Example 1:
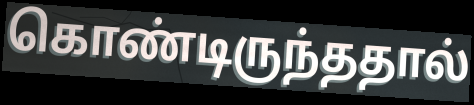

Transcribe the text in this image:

கொண்டிருந்ததால்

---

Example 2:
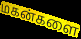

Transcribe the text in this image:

மகன்களை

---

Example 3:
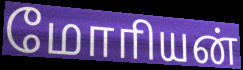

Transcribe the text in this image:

மோரியன்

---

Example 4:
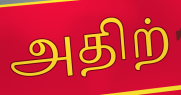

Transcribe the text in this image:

அதிற்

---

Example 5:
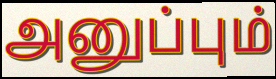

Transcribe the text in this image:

அனுப்பும்